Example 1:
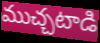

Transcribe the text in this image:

ముచ్చటాడి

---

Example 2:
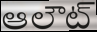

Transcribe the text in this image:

ఆలౌట్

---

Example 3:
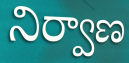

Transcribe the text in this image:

నిర్వాణ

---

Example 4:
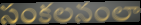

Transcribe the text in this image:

సంకలనంలా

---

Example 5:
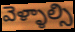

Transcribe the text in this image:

వెళ్ళాల్సి